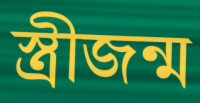
স্ত্রীজন্ম